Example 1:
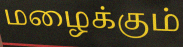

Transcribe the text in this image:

மழைக்கும்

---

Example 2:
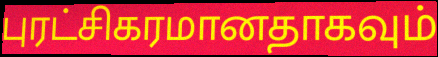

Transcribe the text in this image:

புரட்சிகரமானதாகவும்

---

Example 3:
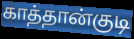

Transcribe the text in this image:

காத்தான்குடி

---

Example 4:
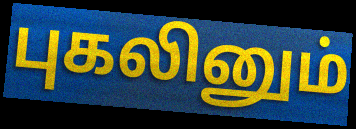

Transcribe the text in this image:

புகலினும்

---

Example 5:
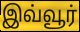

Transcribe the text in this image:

இவ்வூர்